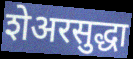
शेअरसुद्धा